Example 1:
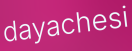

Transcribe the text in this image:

dayachesi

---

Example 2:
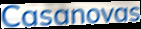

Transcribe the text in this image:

Casanovas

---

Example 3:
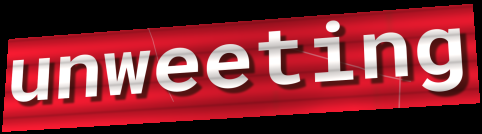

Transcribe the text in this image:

unweeting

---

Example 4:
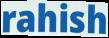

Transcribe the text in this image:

rahish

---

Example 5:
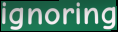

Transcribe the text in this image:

ignoring